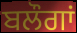
ਬਲੌਗਾਂ